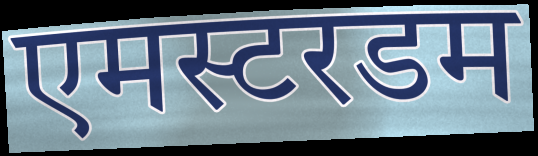
एमस्टरडम